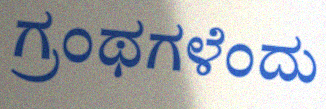
ಗ್ರಂಥಗಳೆಂದು